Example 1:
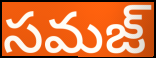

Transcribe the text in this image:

సమజ్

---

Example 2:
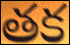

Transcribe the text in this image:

తక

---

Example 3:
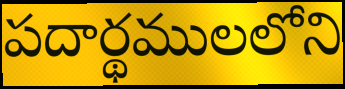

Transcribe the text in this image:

పదార్థములలోని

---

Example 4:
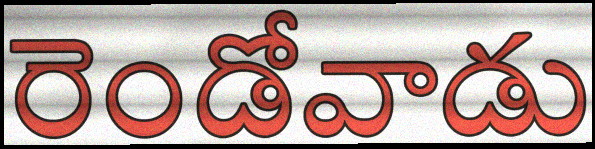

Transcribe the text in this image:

రెండోవాడు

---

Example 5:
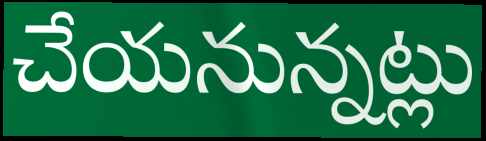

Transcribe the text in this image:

చేయనున్నట్లు